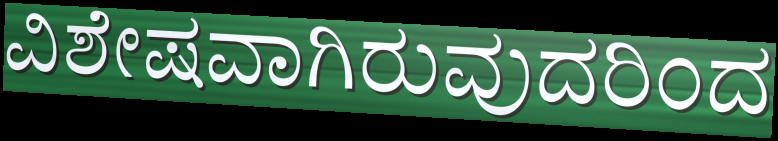
ವಿಶೇಷವಾಗಿರುವುದರಿಂದ